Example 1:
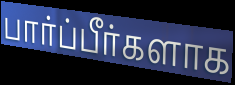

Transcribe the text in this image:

பார்ப்பீர்களாக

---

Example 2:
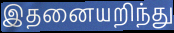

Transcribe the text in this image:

இதனையறிந்து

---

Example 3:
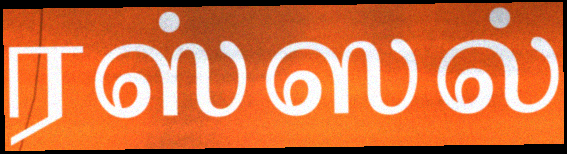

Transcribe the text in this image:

ரஸ்ஸல்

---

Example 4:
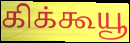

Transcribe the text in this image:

கிக்கூயூ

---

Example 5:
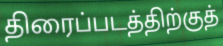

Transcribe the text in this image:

திரைப்படத்திற்குத்